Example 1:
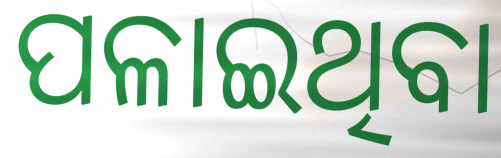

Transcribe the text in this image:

ପଳାଇଥିବା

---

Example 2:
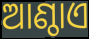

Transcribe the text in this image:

ଆଣ୍ଠାଏ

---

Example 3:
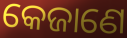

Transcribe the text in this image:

କେଜାଣେ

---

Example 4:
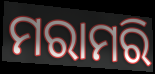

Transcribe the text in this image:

ମରାମରି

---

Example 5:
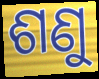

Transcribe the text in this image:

ଶଣୁ